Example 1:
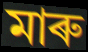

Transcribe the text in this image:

মাৰু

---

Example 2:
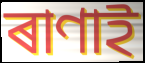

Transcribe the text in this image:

ৰাণাই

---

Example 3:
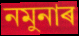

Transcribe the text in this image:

নমুনাৰ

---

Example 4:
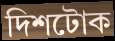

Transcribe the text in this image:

দিশটোক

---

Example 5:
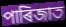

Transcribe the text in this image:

পাৰিজাত